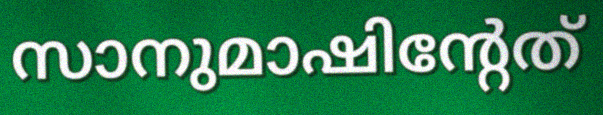
സാനുമാഷിന്റേത്